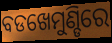
ବଡଖେମୁଣ୍ଡିରେ